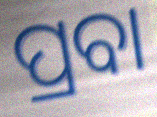
ପ୍ରବା